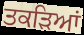
ਤਕੜਿਆਂ